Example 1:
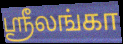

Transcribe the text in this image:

ஶ்ரீலங்கா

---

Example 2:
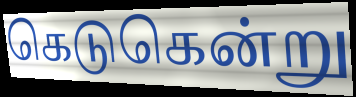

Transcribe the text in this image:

கெடுகென்று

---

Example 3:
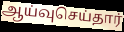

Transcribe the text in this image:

ஆய்வுசெய்தார்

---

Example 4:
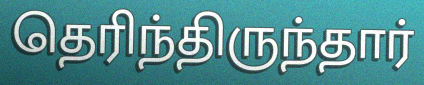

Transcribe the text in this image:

தெரிந்திருந்தார்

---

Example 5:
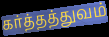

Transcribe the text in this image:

கர்த்தத்துவம்